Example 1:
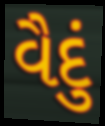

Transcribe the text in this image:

વૈદું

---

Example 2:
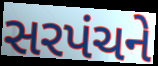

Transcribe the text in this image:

સરપંચને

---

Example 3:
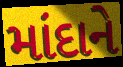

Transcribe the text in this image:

માંદાને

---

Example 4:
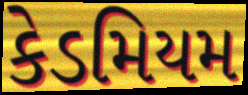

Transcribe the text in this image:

કેડમિયમ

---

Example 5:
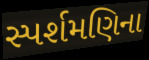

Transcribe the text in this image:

સ્પર્શમણિના